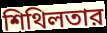
শিথিলতার